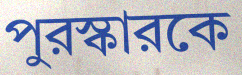
পুরস্কারকে